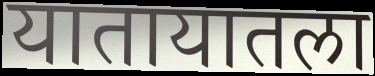
यातायातला